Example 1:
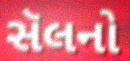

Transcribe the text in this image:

સૅલનો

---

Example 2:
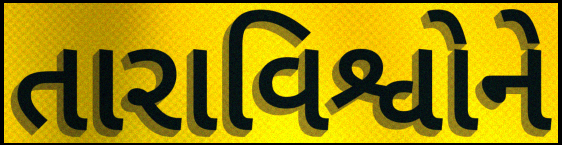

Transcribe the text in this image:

તારાવિશ્વોને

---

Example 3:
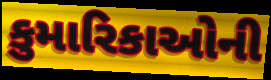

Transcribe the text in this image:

કુમારિકાઓની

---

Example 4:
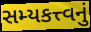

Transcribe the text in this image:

સમ્યકત્ત્વનું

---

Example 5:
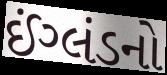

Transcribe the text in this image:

ઈંગ્લંડનો